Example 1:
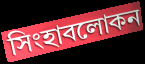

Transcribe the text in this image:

সিংহাবলোকন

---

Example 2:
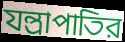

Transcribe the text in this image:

যন্ত্রাপাতির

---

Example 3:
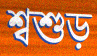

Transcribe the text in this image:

শ্বশুড়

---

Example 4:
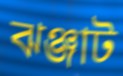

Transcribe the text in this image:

ঝঞ্জাট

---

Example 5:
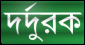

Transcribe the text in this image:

দর্দুরক